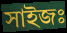
সাইজঃ